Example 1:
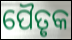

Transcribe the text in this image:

ପୈତୃକ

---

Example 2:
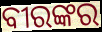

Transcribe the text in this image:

ବୀରଙ୍କର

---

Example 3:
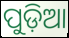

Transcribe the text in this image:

ପୁଡ଼ିଆ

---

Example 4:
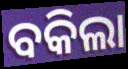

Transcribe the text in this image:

ବକିଲା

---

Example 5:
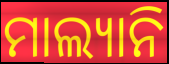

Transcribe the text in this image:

ମାଲ୍ୟାନି